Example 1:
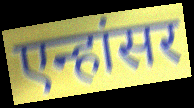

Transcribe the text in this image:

एन्हांसर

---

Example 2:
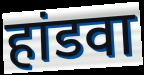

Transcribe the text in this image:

हांडवा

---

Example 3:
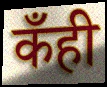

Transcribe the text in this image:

कँही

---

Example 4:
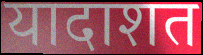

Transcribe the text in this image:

यादाशत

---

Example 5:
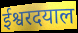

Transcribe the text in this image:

ईश्वरदयाल